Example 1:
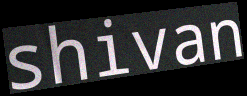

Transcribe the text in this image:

shivan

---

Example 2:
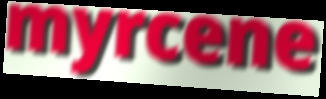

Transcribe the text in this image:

myrcene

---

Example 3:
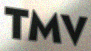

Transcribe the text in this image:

TMV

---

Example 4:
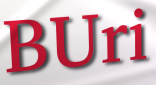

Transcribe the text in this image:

BUri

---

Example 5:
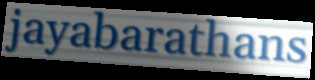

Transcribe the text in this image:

jayabarathans